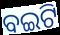
ବଇଟି